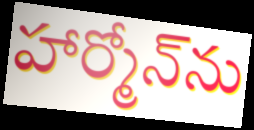
హార్మోన్‌ను